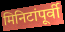
मिनिटांपूर्वी